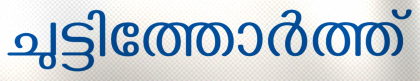
ചുട്ടിത്തോർത്ത്